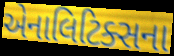
એનાલિટિક્સના